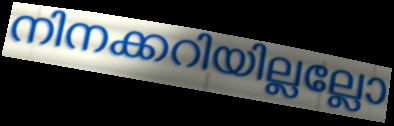
നിനക്കറിയില്ലല്ലോ